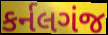
કર્નલગંજ